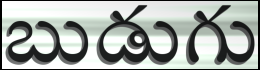
బుడుగు